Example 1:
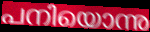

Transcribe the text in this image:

പനിയൊന്നു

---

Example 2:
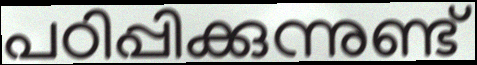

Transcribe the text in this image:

പഠിപ്പിക്കുന്നുണ്ട്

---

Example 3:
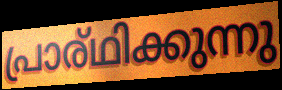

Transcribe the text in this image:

പ്രാര്ഥിക്കുന്നു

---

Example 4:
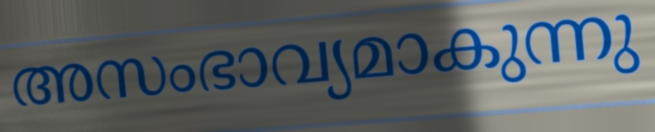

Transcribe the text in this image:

അസംഭാവ്യമാകുന്നു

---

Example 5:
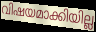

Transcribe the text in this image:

വിഷയമാക്കിയില്ല